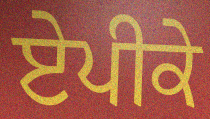
ਏਪੀਕੇ